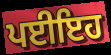
ਪਈਇਹ